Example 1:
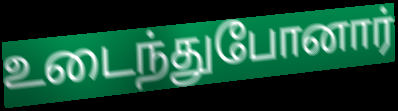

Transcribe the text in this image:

உடைந்துபோனார்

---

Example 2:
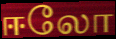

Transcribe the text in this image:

ஈலோ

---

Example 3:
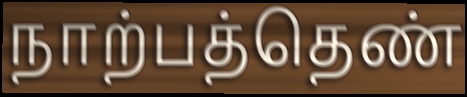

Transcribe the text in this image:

நாற்பத்தெண்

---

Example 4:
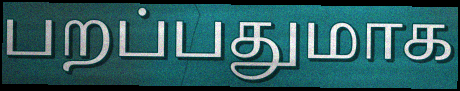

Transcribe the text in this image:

பறப்பதுமாக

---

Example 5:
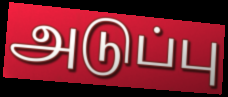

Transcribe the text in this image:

அடுப்பு